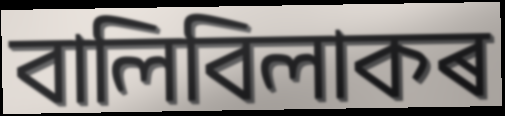
বালিবিলাকৰ